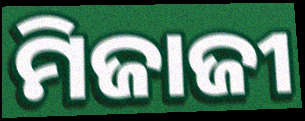
ମିଜାଜୀ